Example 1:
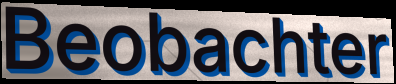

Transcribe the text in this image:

Beobachter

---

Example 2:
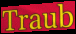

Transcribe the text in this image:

Traub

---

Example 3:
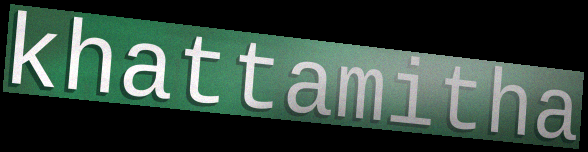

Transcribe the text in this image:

khattamitha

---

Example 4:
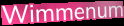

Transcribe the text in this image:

Wimmenum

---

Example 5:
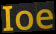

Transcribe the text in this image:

Ioe